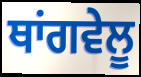
ਥਾਂਗਵੇਲੂ